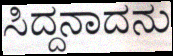
ಸಿದ್ದನಾದನು